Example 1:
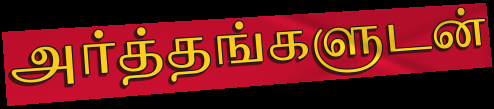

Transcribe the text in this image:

அர்த்தங்களுடன்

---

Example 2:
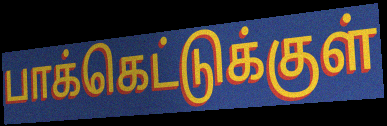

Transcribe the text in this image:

பாக்கெட்டுக்குள்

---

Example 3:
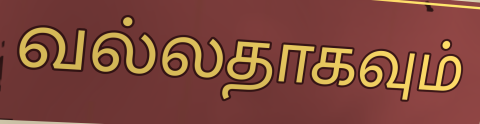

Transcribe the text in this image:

வல்லதாகவும்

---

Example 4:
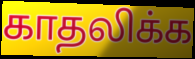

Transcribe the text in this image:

காதலிக்க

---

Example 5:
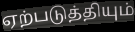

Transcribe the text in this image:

ஏற்படுத்தியும்